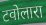
टवोलारा